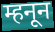
म्हनून